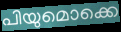
പിയുമൊക്കെ